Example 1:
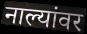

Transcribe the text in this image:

नाल्यांवर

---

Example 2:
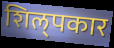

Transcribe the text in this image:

शिल्पकार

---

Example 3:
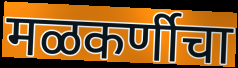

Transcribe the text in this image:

मळकर्णीचा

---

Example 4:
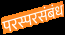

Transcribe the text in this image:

परस्परसंबंध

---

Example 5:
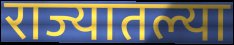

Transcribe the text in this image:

राज्यातल्या